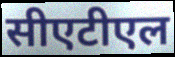
सीएटीएल